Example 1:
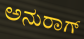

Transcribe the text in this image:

ಅನುರಾಗ್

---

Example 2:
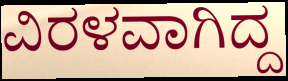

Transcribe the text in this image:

ವಿರಳವಾಗಿದ್ದ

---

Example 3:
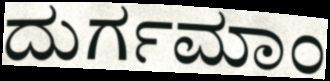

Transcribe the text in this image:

ದುರ್ಗಮಾಂ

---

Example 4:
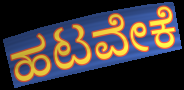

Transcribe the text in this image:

ಹಟವೇಕೆ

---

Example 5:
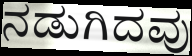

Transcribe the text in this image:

ನಡುಗಿದವು